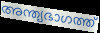
അന്ത്യഭാഗത്ത്